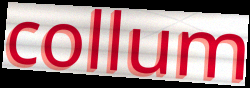
collum